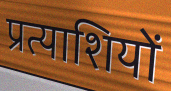
प्रत्याशियों